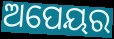
ଅପେୟର